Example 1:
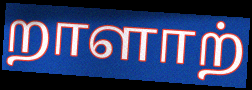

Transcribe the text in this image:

றாளாற்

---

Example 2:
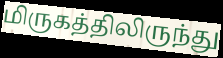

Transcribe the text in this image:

மிருகத்திலிருந்து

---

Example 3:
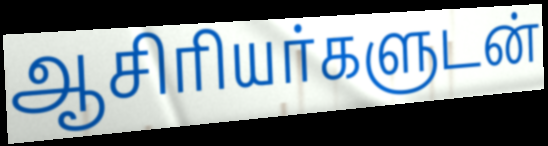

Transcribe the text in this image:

ஆசிரியர்களுடன்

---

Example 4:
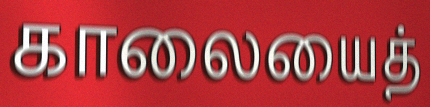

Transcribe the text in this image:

காலையைத்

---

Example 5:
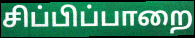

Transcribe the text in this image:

சிப்பிப்பாறை